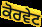
ਕੋਰਵੇਟ